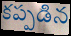
కప్పడిన